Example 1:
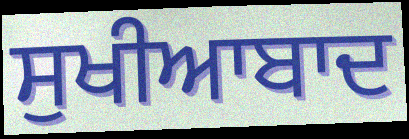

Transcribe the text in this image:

ਸੁਖੀਆਬਾਦ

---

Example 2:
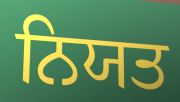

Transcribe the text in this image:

ਨਿਯਤ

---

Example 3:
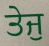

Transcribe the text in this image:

ਤੇਜੁ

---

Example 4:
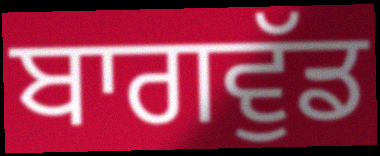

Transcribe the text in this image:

ਬਾਗਵੁੱਡ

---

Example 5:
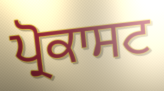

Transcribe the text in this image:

ਪ੍ਰੋਕਾਸਟ